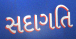
સદાગતિ